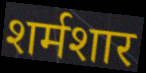
शर्मशार